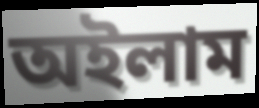
অইলাম